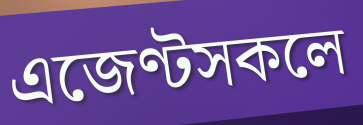
এজেণ্টসকলে